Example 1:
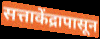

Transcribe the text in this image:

सत्ताकेंद्रापासून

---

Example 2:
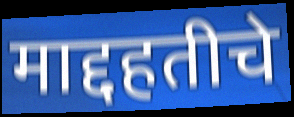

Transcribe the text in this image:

माद्दहतीचे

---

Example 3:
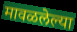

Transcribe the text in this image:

मावळलेल्या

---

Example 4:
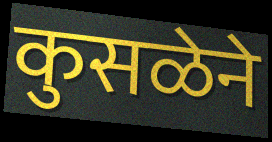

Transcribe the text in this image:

कुसळेने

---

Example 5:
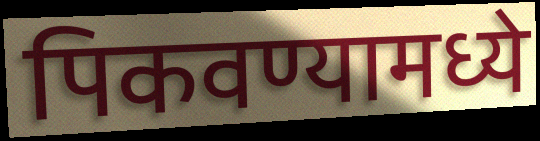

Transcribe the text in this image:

पिकवण्यामध्ये